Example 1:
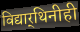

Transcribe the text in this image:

विद्यार्थिनीही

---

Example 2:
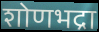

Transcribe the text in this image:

शोणभद्रा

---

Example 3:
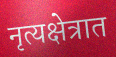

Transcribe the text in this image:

नृत्यक्षेत्रात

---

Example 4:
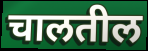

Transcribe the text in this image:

चालतील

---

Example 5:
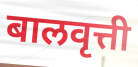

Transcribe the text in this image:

बालवृत्ती